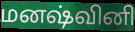
மனஷ்வினி